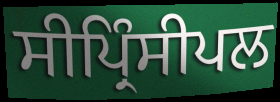
ਸੀਪ੍ਰਿੰਸੀਪਲ